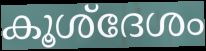
കൂശ്ദേശം